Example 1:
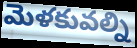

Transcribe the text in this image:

మెళకువల్ని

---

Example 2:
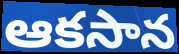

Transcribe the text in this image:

ఆకసాన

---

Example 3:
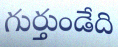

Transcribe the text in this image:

గుర్తుండేది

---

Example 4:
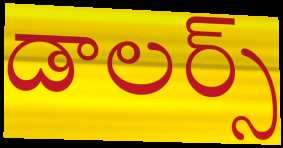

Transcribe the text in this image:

డాలర్స్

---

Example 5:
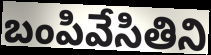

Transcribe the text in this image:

బంపివేసితిని